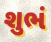
શુભં